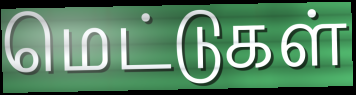
மெட்டுகள்